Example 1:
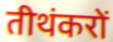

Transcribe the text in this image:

तीथंकरों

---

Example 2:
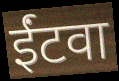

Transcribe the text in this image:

ईंटवा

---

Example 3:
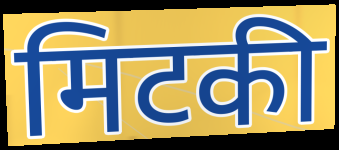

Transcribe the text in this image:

मिटकी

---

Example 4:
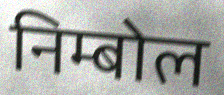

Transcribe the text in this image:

निम्बोल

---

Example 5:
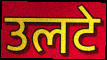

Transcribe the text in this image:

उलटे